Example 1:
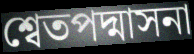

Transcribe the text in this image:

শ্বেতপদ্মাসনা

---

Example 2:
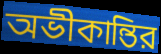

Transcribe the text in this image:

অভীকান্তির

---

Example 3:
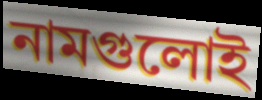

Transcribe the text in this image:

নামগুলোই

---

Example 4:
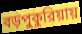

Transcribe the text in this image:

বড়পুকুরিয়ায়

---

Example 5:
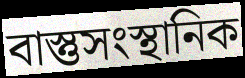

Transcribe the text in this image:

বাস্তুসংস্থানিক